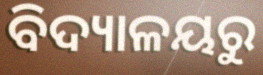
ବିଦ୍ୟାଳୟରୁ